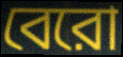
বেরো